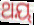
ଥୟ